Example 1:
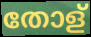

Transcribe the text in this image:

തോള്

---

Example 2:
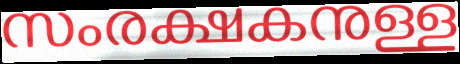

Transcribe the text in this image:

സംരക്ഷകനുള്ള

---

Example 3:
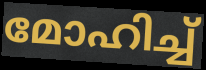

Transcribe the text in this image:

മോഹിച്ച്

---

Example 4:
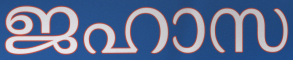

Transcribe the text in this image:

ജഹാസ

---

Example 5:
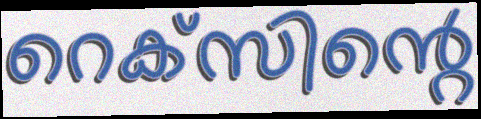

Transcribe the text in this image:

റെക്‌സിന്റെ